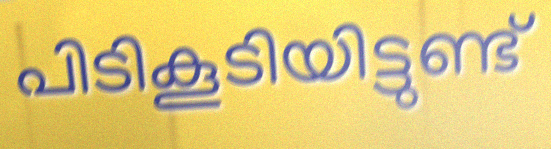
പിടികൂടിയിട്ടുണ്ട്